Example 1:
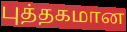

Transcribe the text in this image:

புத்தகமான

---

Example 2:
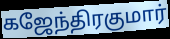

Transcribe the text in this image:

கஜேந்திரகுமார்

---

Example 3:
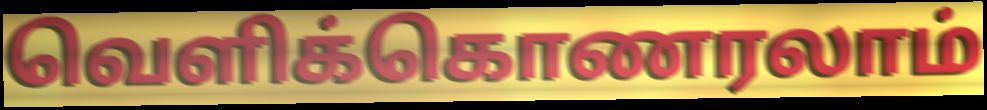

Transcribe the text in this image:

வெளிக்கொணரலாம்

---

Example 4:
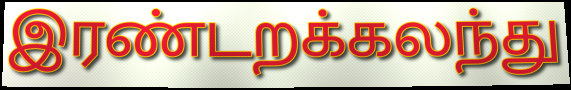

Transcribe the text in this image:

இரண்டறக்கலந்து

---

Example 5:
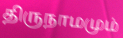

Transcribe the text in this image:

திருநாமமும்